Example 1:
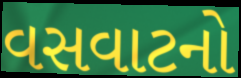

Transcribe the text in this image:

વસવાટનો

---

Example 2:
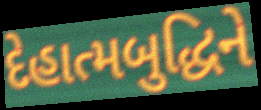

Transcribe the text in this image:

દેહાત્મબુદ્ધિને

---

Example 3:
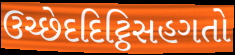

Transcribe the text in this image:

ઉચ્છેદદિટ્ઠિસહગતો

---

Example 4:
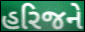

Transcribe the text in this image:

હરિજને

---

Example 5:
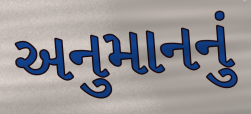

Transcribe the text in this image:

અનુમાનનું